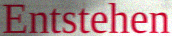
Entstehen